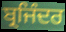
ਬ੍ਰਜਿੰਦਰ